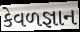
કેવળજ્ઞાન